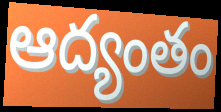
ఆద్యంతం